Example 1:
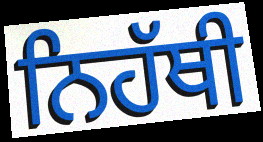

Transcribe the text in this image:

ਨਿਹੱਥੀ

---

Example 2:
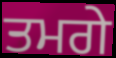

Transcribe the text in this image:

ਤਮਗੇ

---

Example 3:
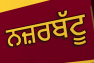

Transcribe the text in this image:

ਨਜ਼ਰਬੱਟੂ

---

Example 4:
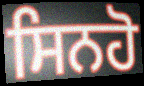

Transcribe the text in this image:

ਸਿਨਹੋ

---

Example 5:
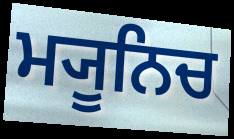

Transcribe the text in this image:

ਮ੍ਯੂਨਿਚ